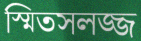
স্মিতসলজ্জ